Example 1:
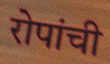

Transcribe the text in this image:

रोपांची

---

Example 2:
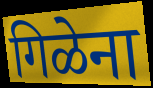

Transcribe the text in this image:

गिळेना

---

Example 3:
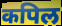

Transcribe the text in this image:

कपिल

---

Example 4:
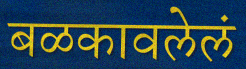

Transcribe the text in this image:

बळकावलेलं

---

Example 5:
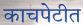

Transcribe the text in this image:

काचपेटीत